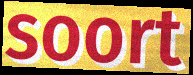
soort